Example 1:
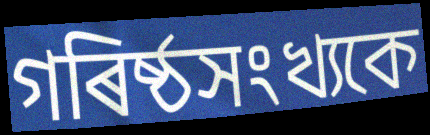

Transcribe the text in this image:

গৰিষ্ঠসংখ্যকে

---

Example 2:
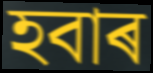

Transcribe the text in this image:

হবাৰ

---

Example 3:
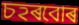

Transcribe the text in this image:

চহৰবোৰ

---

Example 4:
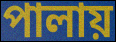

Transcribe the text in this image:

পালায়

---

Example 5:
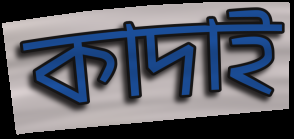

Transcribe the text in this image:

কাদাই